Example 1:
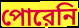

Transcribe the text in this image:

পোরেনি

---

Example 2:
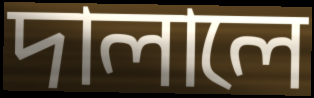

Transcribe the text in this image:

দালালে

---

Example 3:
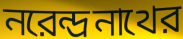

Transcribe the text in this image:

নরেন্দ্রনাথের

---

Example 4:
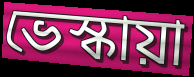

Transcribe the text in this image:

ভেস্কায়া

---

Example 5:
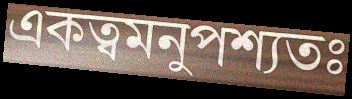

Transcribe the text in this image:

একত্বমনুপশ্যতঃ